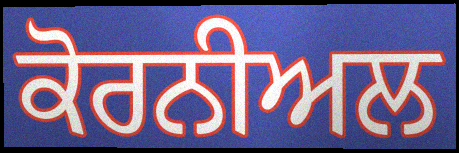
ਕੋਰਨੀਅਲ